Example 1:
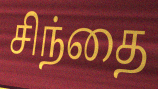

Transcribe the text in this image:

சிந்தை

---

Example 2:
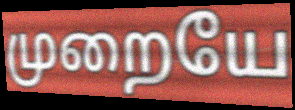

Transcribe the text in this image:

முறையே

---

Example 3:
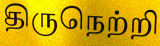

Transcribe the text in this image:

திருநெற்றி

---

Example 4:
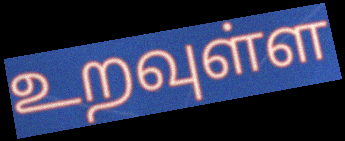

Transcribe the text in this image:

உறவுள்ள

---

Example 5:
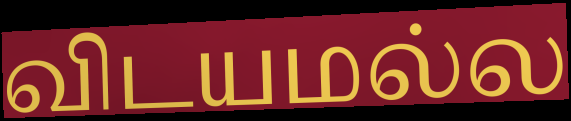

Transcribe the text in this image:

விடயமல்ல